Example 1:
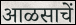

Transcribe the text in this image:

आळसाचें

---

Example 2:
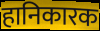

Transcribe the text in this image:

हानिकारक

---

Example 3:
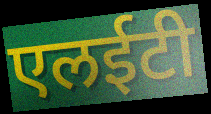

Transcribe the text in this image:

एलईटी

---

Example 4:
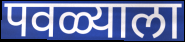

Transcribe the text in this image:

पवळ्याला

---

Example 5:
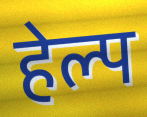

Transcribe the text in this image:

हेल्प